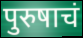
पुरुषाचं